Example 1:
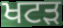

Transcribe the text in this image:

ਖਟੜ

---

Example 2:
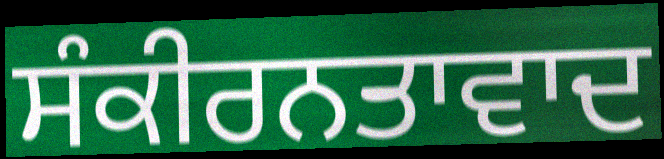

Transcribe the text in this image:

ਸੰਕੀਰਨਤਾਵਾਦ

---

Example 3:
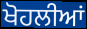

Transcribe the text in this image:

ਖੋਹਲੀਆਂ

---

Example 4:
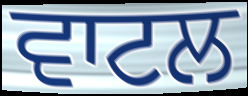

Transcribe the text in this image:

ਵਾਟਲ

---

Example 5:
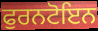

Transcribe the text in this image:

ਫੁਰਨਟੋਇਨ